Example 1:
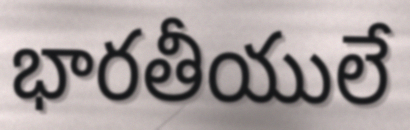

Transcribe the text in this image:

భారతీయులే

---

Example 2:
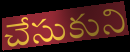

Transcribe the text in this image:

చేసుకుని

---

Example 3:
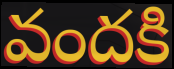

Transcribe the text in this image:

వందకి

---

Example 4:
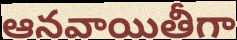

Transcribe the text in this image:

ఆనవాయితీగా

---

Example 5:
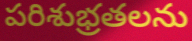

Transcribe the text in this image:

పరిశుభ్రతలను